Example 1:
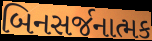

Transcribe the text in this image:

બિનસર્જનાત્મક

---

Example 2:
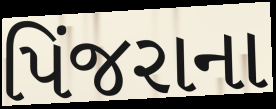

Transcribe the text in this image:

પિંજરાના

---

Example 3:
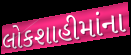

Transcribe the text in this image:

લોકશાહીમાંના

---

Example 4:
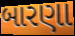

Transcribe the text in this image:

બારણા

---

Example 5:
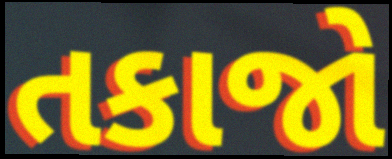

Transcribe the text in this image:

તકાજો